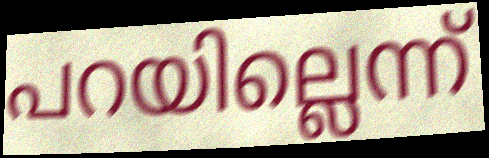
പറയില്ലെന്ന്